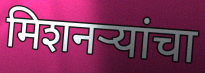
मिशनऱ्यांचा